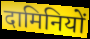
दामिनियों